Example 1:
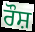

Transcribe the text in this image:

ਰੌਸ਼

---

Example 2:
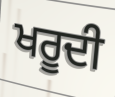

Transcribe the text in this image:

ਖਰੂਦੀ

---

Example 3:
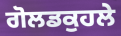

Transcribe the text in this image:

ਗੋਲਡਕੁਹਲੇ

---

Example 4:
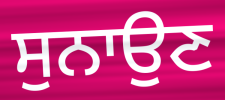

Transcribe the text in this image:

ਸੁਨਾਉਣ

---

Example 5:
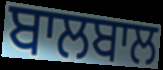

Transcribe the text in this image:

ਬਾਲਬਾਲ